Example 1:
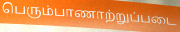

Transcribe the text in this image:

பெரும்பாணாற்றுப்படை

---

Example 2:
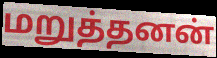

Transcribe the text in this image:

மறுத்தனன்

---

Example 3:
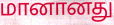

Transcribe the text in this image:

மானானது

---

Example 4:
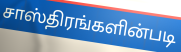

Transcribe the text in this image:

சாஸ்திரங்களின்படி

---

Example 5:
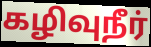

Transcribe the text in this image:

கழிவுநீர்